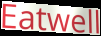
Eatwell